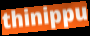
thinippu